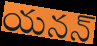
యనన్